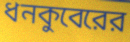
ধনকুবেরের